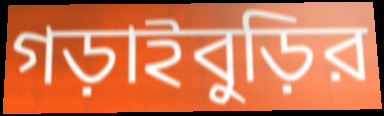
গড়াইবুড়ির